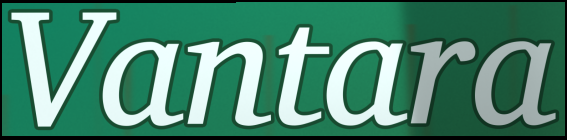
Vantara